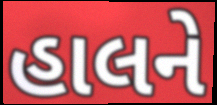
હાલને